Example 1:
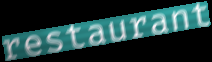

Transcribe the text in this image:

restaurant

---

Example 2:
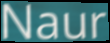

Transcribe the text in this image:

Naur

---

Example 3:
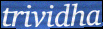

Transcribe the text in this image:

trividha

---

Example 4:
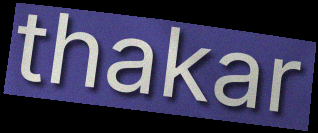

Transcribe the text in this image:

thakar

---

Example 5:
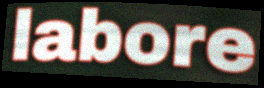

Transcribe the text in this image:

labore